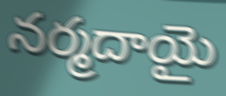
నర్మదాయై